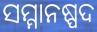
ସମ୍ମାନଷ୍ପଦ